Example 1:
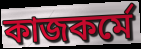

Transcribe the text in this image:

কাজকর্মে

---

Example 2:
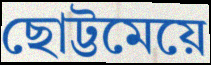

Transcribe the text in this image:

ছোট্টমেয়ে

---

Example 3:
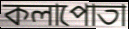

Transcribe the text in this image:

কলাপোতা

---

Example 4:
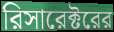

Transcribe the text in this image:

রিসারেক্টরের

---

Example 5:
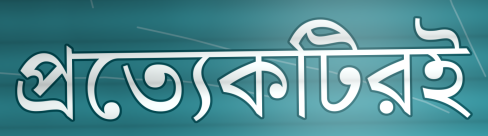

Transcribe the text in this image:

প্রত্যেকটিরই